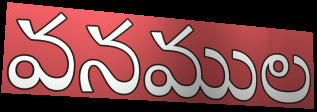
వనముల